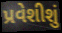
પ્રવેશીશું